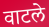
वाटले